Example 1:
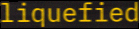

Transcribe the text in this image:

liquefied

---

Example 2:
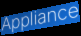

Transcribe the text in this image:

Appliance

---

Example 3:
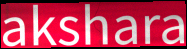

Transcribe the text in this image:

akshara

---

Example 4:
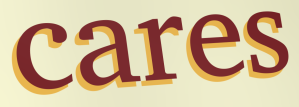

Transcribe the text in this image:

cares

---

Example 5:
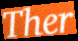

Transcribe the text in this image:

Ther